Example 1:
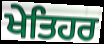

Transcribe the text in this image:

ਖੇਤਿਹਰ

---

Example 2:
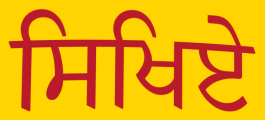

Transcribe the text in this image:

ਸਿਖਿਏ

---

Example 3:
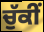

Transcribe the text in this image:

ਚੁੱਕੀਂ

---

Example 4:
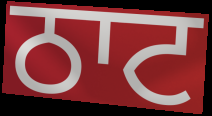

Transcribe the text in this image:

ਠਾਟ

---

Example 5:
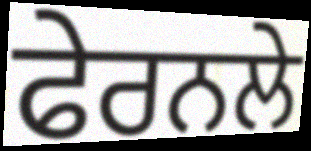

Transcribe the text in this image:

ਫੇਰਨਲੇ